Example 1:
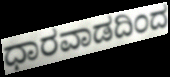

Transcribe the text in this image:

ಧಾರವಾಡದಿಂದ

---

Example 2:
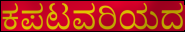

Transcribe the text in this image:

ಕಪಟವರಿಯದ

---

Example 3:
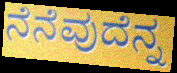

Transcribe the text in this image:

ನೆನೆವುದೆನ್ನ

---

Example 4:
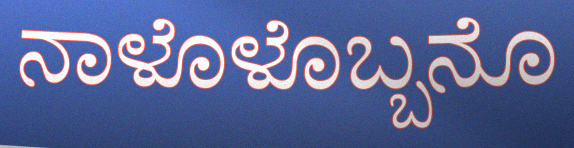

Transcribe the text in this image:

ನಾಳೊಳೊಬ್ಬನೊ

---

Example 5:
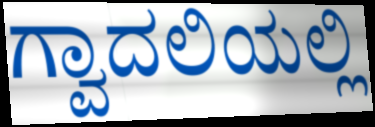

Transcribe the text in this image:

ಗ್ವಾದಲಿಯಲ್ಲಿ